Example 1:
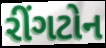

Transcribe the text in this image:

રીંગટોન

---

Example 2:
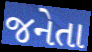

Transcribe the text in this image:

જનેતા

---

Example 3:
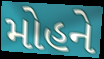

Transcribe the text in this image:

મોહને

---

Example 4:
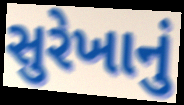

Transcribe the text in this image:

સુરેખાનું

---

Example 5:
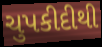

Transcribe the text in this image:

ચુપકીદીથી